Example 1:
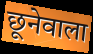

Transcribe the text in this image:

छूनेवाला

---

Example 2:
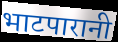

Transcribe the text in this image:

भाटपारानी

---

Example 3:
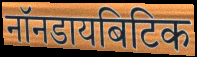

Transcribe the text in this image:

नॉनडायबिटिक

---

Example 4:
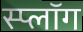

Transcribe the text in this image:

स्प्लॉग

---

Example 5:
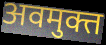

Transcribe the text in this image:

अवमुक्त